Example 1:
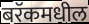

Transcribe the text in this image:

बरॅकमधील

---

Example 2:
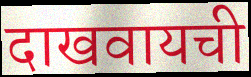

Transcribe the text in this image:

दाखवायची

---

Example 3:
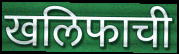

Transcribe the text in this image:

खलिफाची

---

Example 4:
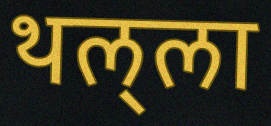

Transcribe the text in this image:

थल्ला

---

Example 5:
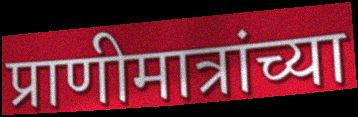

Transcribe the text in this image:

प्राणीमात्रांच्या